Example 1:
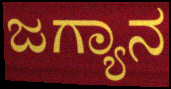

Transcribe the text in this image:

ಜಗ್ಯಾನ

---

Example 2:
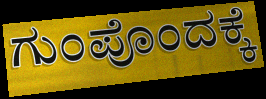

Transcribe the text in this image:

ಗುಂಪೊಂದಕ್ಕೆ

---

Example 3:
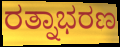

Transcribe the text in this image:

ರತ್ನಾಭರಣ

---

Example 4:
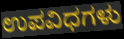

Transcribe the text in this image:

ಉಪವಿಧಗಳು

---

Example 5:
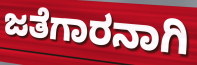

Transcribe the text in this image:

ಜತೆಗಾರನಾಗಿ